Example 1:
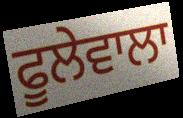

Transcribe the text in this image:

ਫੂਲੇਵਾਲਾ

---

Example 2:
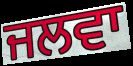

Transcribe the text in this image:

ਜਲਵਾ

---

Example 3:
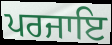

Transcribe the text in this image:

ਪਰਜਾਇ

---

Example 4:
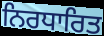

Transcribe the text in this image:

ਨਿਰਧਾਰਿਤ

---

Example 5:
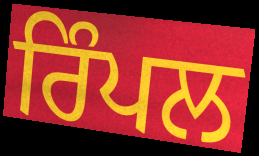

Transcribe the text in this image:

ਰਿੰਪਲ